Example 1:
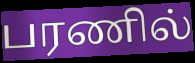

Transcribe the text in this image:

பரணில்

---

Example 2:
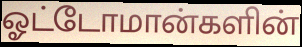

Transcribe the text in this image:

ஓட்டோமான்களின்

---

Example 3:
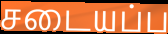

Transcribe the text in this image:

சடையப்ப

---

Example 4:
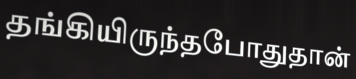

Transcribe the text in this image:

தங்கியிருந்தபோதுதான்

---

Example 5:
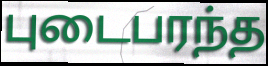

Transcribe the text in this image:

புடைபரந்த